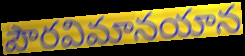
పౌరవిమానయాన